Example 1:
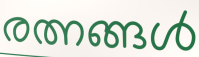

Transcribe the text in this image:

രത്നങ്ങൾ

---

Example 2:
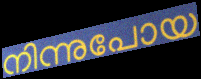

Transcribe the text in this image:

നിന്നുപോയ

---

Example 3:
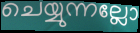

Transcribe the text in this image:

ചെയ്യുന്നല്ലോ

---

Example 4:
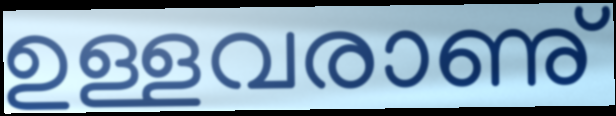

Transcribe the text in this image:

ഉള്ളവരാണു്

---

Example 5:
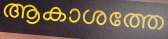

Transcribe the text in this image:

ആകാശത്തേ